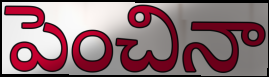
పెంచినా